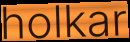
holkar